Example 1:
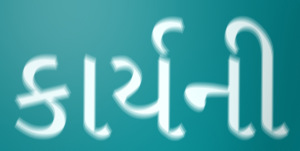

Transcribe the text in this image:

કાર્યની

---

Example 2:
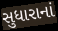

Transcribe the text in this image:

સુધારાનાં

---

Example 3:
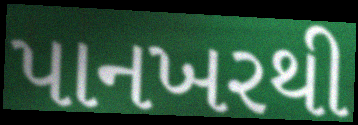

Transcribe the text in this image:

પાનખરથી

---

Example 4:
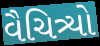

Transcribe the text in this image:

વૈચિત્ર્યો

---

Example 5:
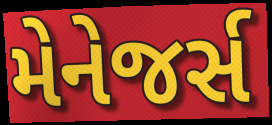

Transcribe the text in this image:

મેનેજર્સ